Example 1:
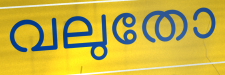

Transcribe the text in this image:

വലുതോ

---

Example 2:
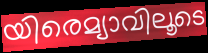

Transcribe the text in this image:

യിരെമ്യാവിലൂടെ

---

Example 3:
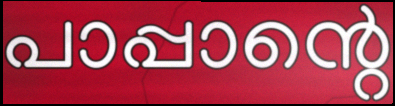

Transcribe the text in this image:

പാപ്പാന്റെ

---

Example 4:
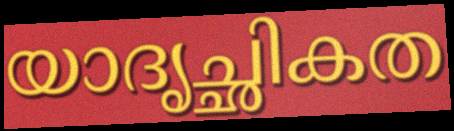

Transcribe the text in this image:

യാദൃച്ഛികത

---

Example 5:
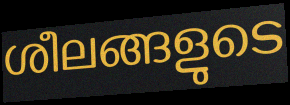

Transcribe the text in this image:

ശീലങ്ങളുടെ